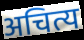
अचित्य